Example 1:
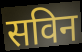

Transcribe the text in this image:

सविन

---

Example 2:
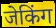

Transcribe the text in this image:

जेकिंग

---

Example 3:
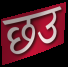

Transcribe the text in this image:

छउ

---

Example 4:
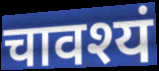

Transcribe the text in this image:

चावश्यं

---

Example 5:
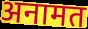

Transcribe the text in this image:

अनामत